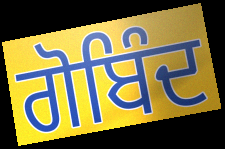
ਗੋਬਿੰਦ